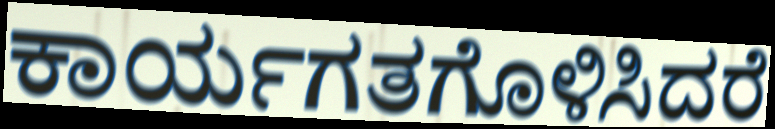
ಕಾರ್ಯಗತಗೊಳಿಸಿದರೆ